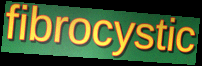
fibrocystic